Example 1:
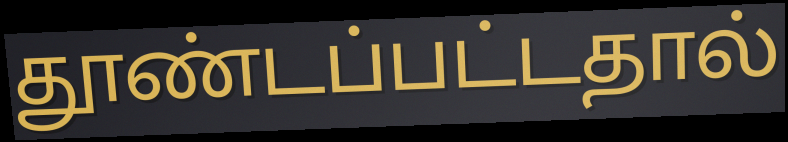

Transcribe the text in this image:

தூண்டப்பட்டதால்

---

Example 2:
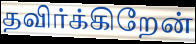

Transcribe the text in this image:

தவிர்க்கிறேன்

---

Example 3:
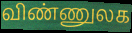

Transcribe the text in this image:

விண்ணுலக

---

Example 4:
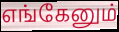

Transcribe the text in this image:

எங்கேனும்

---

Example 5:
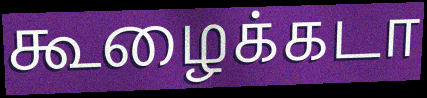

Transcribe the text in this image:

கூழைக்கடா